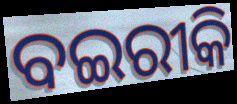
ବଇରୀକି